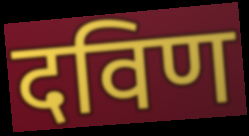
दविण